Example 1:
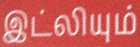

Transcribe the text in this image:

இட்லியும்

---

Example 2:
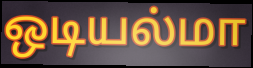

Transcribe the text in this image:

ஒடியல்மா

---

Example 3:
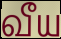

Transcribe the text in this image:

வீய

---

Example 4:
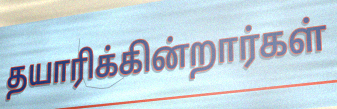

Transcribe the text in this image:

தயாரிக்கின்றார்கள்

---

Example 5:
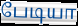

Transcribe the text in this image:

பேடியா